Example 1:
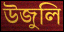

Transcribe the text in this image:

উজুলি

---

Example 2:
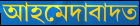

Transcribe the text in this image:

আহমেদাবাদত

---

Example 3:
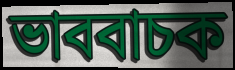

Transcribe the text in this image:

ভাববাচক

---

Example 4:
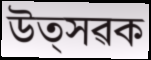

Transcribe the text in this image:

উত্সৱক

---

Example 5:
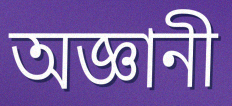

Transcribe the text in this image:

অজ্ঞানী